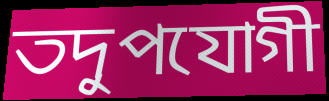
তদুপযোগী